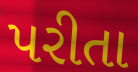
પરીતા